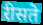
रीसते